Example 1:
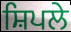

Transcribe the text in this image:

ਸ਼ਿਪਲੇ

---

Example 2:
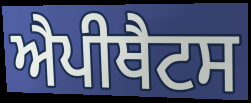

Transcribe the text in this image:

ਐਪੀਥੈਟਸ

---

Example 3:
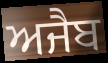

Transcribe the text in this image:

ਅਜੈਬ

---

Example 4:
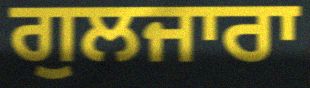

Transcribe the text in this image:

ਗੁਲਜਾਰਾ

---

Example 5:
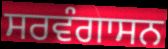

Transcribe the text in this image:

ਸਰਵੰਗਾਸਨ